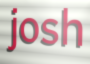
josh